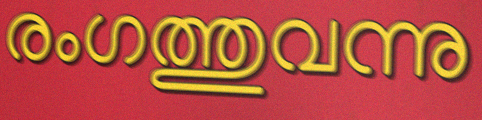
രംഗത്തുവന്നു